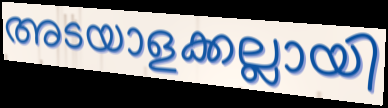
അടയാളക്കല്ലായി